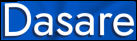
Dasare